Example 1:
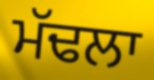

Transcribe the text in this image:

ਮੱਢਲਾ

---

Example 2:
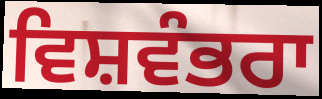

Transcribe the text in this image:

ਵਿਸ਼ਵੰਭਰਾ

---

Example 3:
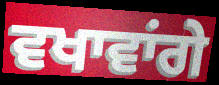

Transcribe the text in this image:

ਵਖਾਵਾਂਗੇ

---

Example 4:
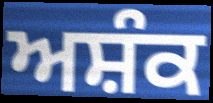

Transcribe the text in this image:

ਅਸ਼ੰਕ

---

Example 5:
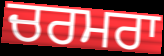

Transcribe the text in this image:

ਚਰਮਰਾ